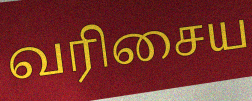
வரிசைய